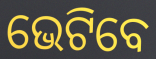
ଭେଟିବେ